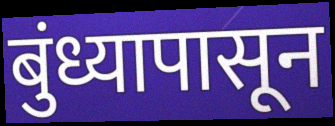
बुंध्यापासून